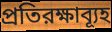
প্রতিরক্ষাব্যূহ